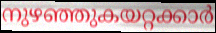
നുഴഞ്ഞുകയറ്റക്കാർ